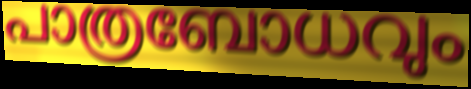
പാത്രബോധവും